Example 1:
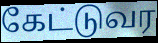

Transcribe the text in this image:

கேட்டுவர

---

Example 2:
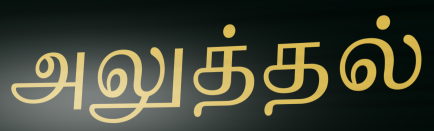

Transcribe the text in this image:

அலுத்தல்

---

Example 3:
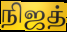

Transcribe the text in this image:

நிஜத்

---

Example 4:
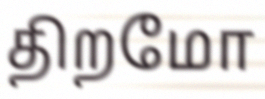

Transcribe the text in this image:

திறமோ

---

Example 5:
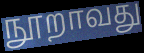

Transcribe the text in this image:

நூறாவது